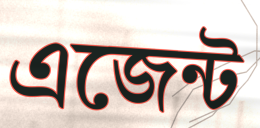
এজেন্ট